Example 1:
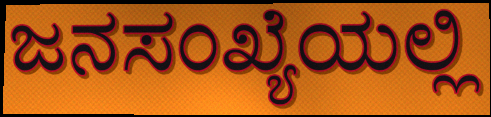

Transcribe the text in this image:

ಜನಸಂಖ್ಯೆಯಲ್ಲಿ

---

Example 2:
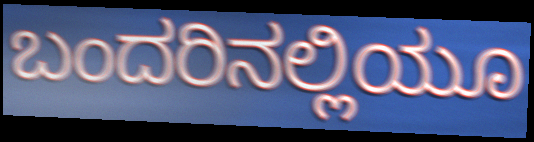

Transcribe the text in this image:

ಬಂದರಿನಲ್ಲಿಯೂ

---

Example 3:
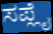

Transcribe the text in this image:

ಸಪ್ಲೈ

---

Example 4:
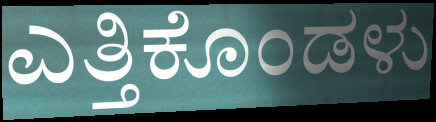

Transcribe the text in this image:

ಎತ್ತಿಕೊಂಡಳು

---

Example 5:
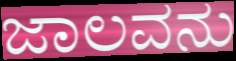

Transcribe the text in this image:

ಜಾಲವನು